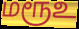
மரூஉ